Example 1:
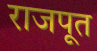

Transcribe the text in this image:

राजपूत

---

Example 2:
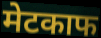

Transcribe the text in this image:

मेटकाफ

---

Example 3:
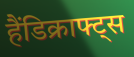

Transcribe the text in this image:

हैंडिक्राफ्ट्स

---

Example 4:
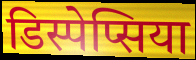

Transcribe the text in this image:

डिस्पेप्सिया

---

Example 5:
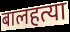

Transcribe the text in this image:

बालहत्या